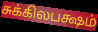
சுக்கிலபக்ஷம்